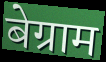
बेग्राम